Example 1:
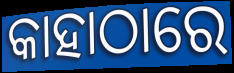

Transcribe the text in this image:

କାହାଠାରେ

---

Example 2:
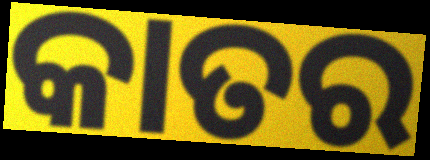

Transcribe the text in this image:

କାତର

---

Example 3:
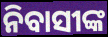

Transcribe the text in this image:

ନିବାସୀଙ୍କ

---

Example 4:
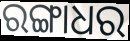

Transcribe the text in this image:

ରଙ୍ଗାଧର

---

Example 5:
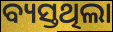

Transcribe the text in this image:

ବ୍ୟସ୍ତଥିଲା